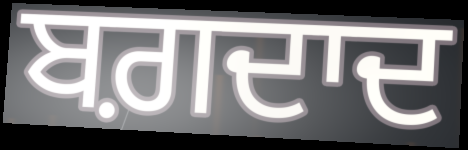
ਬ਼ਗਦਾਦ